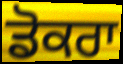
ਡੋਕਰਾ